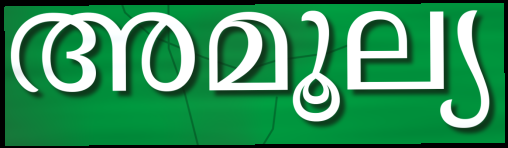
അമൂല്യ